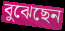
বুঝেছেন